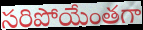
సరిపోయేంతగా